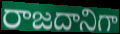
రాజదానిగా